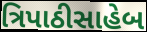
ત્રિપાઠીસાહેબ